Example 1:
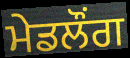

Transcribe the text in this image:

ਮੇਡਲੌਂਗ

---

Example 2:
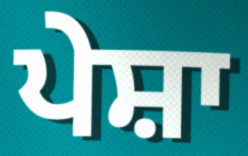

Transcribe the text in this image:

ਪੇਸ਼ਾ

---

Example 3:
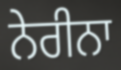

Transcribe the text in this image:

ਨੇਰੀਨਾ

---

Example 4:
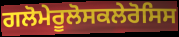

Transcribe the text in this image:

ਗਲੋਮੇਰੂਲੋਸਕਲੇਰੋਸਿਸ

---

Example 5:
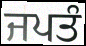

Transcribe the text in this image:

ਜਪਤੰ